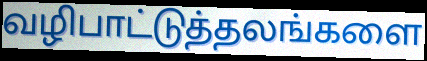
வழிபாட்டுத்தலங்களை